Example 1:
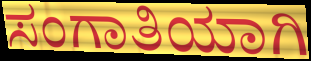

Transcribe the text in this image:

ಸಂಗಾತಿಯಾಗಿ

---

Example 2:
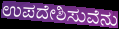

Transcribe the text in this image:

ಉಪದೇಶಿಸುವೆನು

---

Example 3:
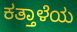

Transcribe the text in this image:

ಕತ್ತಾಳೆಯ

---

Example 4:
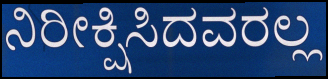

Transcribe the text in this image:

ನಿರೀಕ್ಷಿಸಿದವರಲ್ಲ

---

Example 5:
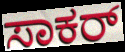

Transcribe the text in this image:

ಸಾಕರ್